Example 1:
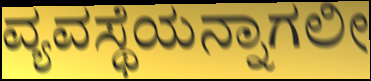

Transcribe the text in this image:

ವ್ಯವಸ್ಥೆಯನ್ನಾಗಲೀ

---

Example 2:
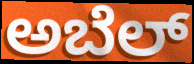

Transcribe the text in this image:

ಅಬೆಲ್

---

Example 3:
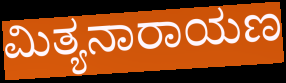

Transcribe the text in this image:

ಮಿತ್ಯನಾರಾಯಣ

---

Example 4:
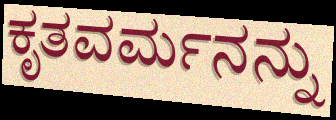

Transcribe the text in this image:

ಕೃತವರ್ಮನನ್ನು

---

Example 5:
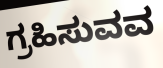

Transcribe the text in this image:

ಗ್ರಹಿಸುವವ